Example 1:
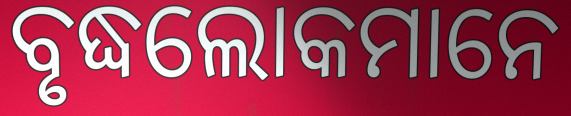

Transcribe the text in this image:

ବୃଦ୍ଧଲୋକମାନେ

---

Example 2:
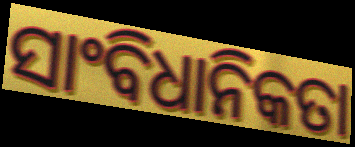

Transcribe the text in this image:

ସାଂବିଧାନିକତା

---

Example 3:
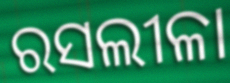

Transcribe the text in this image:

ରସଲୀଳା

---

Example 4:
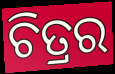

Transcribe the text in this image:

ଚିତ୍ରର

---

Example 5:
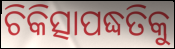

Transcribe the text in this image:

ଚିକିତ୍ସାପଦ୍ଧତିକୁ